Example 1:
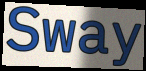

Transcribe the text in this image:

Sway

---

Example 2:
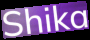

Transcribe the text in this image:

Shika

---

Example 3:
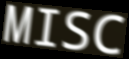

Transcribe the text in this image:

MISC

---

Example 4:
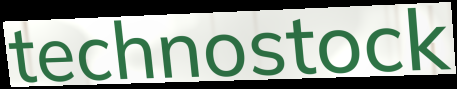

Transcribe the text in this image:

technostock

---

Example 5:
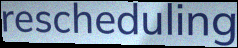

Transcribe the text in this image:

rescheduling